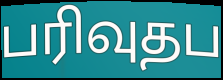
பரிவுதப